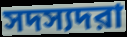
সদস্যদরা